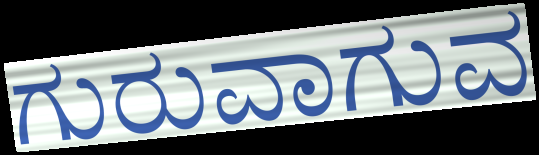
ಗುರುವಾಗುವ